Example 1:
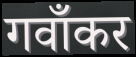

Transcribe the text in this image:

गवाँकर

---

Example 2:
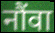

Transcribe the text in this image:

नौंवा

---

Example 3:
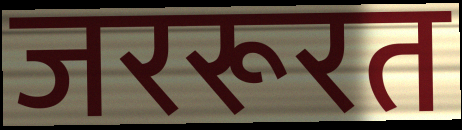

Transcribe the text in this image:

जररूरत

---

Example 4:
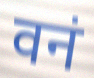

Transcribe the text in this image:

वनं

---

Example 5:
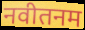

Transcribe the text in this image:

नवीतनम